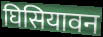
घिसियावन